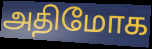
அதிமோக